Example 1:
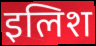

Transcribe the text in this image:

इलिश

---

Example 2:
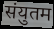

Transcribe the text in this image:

संयुतम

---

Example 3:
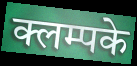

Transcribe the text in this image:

क्लम्पके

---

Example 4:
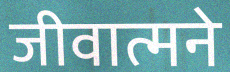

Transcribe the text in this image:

जीवात्मने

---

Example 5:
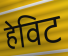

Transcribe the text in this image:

हेविट